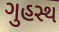
ગુહસ્થ